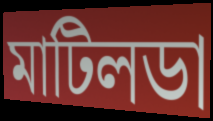
মাটিলডা